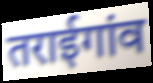
तराईगांव